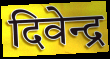
दिवेन्द्र